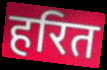
हरित